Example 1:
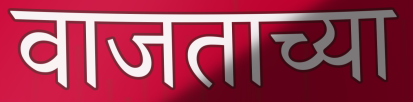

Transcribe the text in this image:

वाजताच्या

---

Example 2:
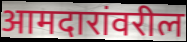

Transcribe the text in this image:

आमदारांवरील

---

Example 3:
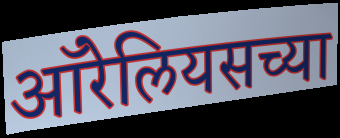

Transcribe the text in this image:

ऑरेलियसच्या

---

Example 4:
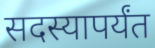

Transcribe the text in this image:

सदस्यापर्यंत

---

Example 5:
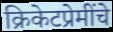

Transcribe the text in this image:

क्रिकेटप्रेमींचे